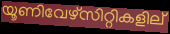
യൂണിവേഴ്സിറ്റികളില്